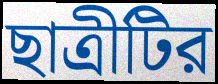
ছাত্রীটির